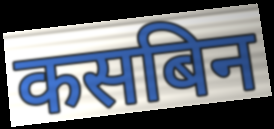
कसबिन